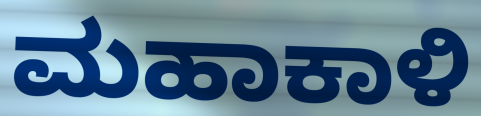
ಮಹಾಕಾಳಿ